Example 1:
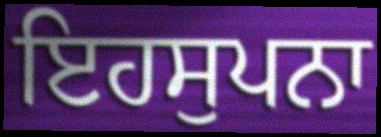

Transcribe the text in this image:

ਇਹਸੁਪਨਾ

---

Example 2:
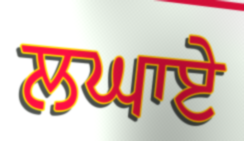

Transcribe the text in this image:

ਲਘਾਏ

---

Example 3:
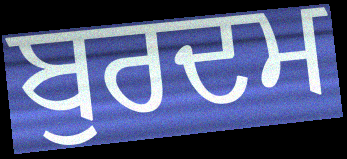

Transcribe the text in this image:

ਬੁਰਦਮ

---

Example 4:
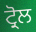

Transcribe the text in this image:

ਟ੍ਰੋਲ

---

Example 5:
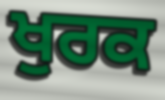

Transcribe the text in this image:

ਖੁਰਕ